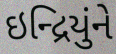
ઇન્દ્રિયુંને